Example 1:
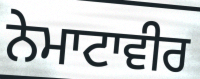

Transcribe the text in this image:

ਨੇਮਾਟਾਵੀਰ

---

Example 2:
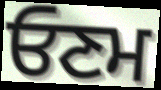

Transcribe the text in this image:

ਓਣਮ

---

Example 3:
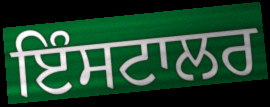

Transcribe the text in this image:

ਇੰਸਟਾਲਰ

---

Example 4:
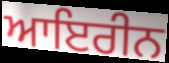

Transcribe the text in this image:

ਆਇਰੀਨ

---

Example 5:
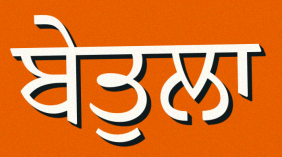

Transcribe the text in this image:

ਬੇਤੁਲਾ